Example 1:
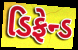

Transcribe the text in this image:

ડિફેન્ડ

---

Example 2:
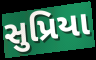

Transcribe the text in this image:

સુપ્રિયા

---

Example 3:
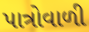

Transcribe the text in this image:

પાત્રોવાળી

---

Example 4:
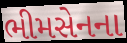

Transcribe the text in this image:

ભીમસેનના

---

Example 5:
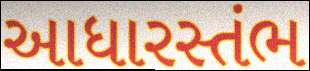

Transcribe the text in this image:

આધારસ્તંભ